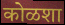
कोळशा